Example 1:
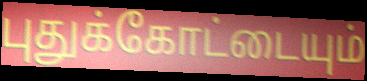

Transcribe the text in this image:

புதுக்கோட்டையும்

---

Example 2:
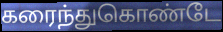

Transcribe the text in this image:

கரைந்துகொண்டே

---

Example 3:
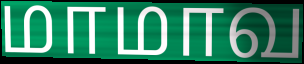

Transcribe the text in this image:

மாமாவ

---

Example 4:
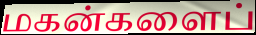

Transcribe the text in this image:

மகன்களைப்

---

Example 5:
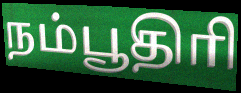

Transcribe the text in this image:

நம்பூதிரி